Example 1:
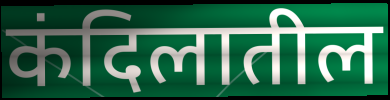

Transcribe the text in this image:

कंदिलातील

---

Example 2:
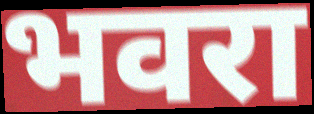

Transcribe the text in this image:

भवरा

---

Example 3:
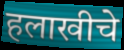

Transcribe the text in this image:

हलाखीचे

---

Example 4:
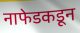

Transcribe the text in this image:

नाफेडकडून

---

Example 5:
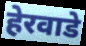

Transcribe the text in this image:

हेरवाडे